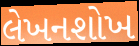
લેખનશોખ